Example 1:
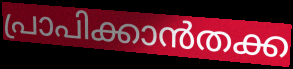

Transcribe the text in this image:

പ്രാപിക്കാൻതക്ക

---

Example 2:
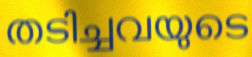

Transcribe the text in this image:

തടിച്ചവയുടെ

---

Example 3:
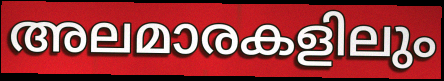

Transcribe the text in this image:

അലമാരകളിലും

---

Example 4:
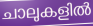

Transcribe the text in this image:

ചാലുകളിൽ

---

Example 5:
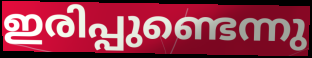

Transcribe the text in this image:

ഇരിപ്പുണ്ടെന്നു